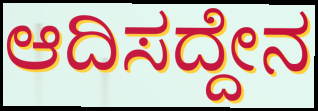
ಆದಿಸದ್ದೇನ